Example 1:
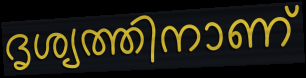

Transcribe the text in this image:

ദൃശ്യത്തിനാണ്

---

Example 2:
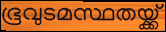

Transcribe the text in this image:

ഭൂവുടമസ്ഥതയ്ക്ക്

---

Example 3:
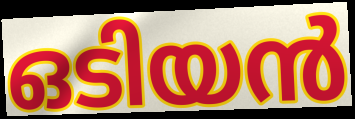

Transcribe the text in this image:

ഒടിയൻ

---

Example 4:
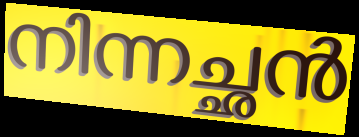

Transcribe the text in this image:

നിന്നച്ഛൻ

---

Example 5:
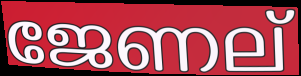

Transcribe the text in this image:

ജേണല്